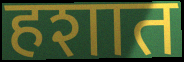
हशात